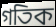
গতিক